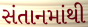
સંતાનમાંથી